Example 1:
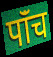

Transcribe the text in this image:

पॉंच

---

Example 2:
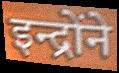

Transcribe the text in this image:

इन्द्रोंने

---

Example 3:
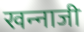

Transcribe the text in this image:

खन्नाजी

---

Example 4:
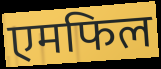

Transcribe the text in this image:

एमफिल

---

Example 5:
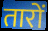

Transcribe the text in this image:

तारों